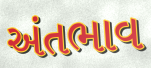
અંતભાવ